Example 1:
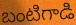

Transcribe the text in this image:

బంటిగాడి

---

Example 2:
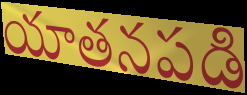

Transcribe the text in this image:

యాతనపడి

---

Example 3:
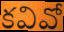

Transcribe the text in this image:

కవివో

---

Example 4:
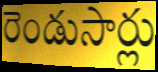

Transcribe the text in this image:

రెండుసార్లు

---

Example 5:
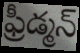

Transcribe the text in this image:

ఫ్రీడ్మన్